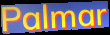
Palmar